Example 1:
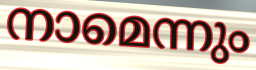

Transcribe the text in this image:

നാമെന്നും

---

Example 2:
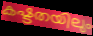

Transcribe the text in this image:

കഷ്ടതയിലും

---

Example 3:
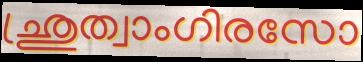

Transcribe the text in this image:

ഛ്രുത്വാംഗിരസോ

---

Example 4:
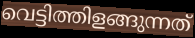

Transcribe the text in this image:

വെട്ടിത്തിളങ്ങുന്നത്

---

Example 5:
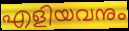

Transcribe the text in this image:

എളിയവനും